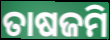
ତାଷଜମି